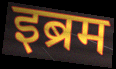
इब्रम